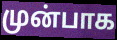
முன்பாக